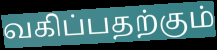
வகிப்பதற்கும்